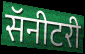
सॅनीटरी